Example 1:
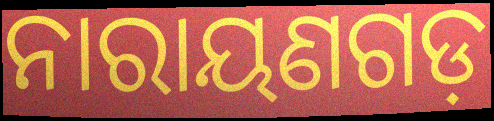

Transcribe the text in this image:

ନାରାୟଣଗଡ଼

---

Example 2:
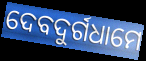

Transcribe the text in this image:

ଦେବଦୁର୍ଗଧାମେ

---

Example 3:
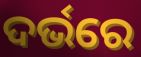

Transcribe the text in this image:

ଦର୍ଭରେ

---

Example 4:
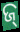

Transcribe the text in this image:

ଜ୍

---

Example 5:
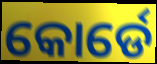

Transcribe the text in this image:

କୋର୍ଡେ